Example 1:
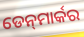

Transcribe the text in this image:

ଡେନ୍‍ମାର୍କର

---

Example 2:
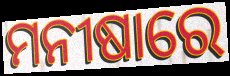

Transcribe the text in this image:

ମନୀଷାରେ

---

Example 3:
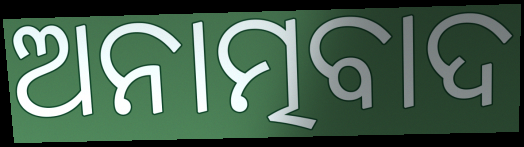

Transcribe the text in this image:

ଅନାତ୍ମବାଦ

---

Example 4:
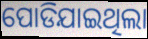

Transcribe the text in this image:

ପୋଡିଯାଇଥିଲା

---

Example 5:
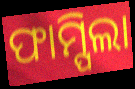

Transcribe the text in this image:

ଫାମ୍ପିଲା